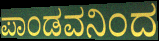
ಪಾಂಡವನಿಂದ